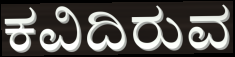
ಕವಿದಿರುವ